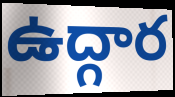
ఉద్గార